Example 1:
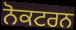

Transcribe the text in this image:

ਨੋਕਟਰਨ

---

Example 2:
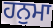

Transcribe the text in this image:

ਹਨੁਮਾ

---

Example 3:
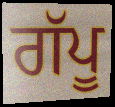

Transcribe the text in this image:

ਗੱਪੂ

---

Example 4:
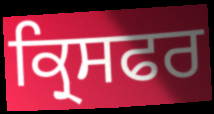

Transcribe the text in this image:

ਕ੍ਰਿਸਫਰ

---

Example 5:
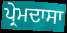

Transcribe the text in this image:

ਪ੍ਰੇਮਦਾਸਾ